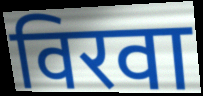
विरवा